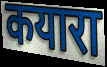
कयारा